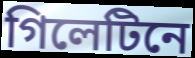
গিলেটিনে